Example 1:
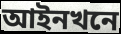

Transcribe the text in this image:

আইনখনে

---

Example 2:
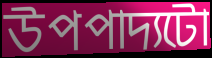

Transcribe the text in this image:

উপপাদ্যটো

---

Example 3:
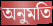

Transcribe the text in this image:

অনুমতি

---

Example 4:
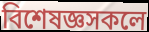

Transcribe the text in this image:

বিশেষজ্ঞসকলে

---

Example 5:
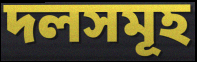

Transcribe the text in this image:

দলসমূহ